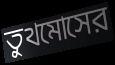
তুথমোসের